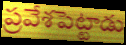
ప్రవేశపెట్టాడు